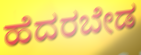
ಹೆದರಬೇಡ